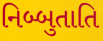
નિબ્બુતાતિ